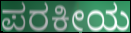
ಪರಕೀಯ